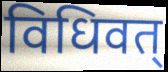
विधिवत्